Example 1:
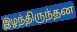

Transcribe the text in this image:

இழந்திருந்தன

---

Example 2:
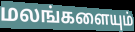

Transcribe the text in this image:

மலங்களையும்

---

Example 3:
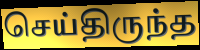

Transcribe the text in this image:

செய்திருந்த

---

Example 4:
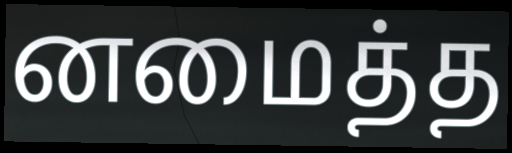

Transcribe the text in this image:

னமைத்த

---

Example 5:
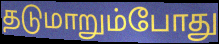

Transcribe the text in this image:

தடுமாறும்போது